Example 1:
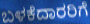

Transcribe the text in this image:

ಬಳಕೆದಾರರಿಗೆ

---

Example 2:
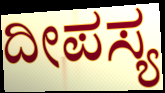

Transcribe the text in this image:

ದೀಪಸ್ಯ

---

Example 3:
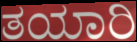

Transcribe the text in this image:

ತಯಾರಿ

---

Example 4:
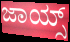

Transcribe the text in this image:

ಜಾಯ್ಸ್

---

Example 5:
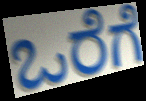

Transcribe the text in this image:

ಒರೆಗೆ